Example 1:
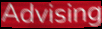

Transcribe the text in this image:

Advising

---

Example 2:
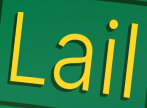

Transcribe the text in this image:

Lail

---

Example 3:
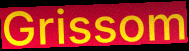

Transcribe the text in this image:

Grissom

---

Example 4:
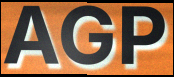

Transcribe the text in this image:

AGP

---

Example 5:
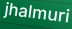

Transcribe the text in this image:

jhalmuri